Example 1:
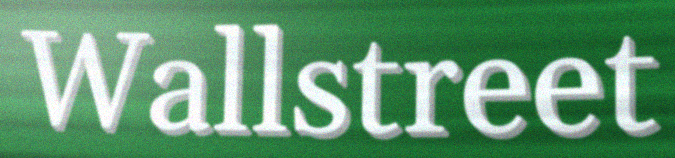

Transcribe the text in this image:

Wallstreet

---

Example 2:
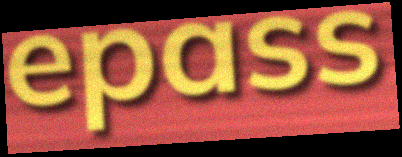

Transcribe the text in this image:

epass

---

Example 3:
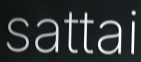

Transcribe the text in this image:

sattai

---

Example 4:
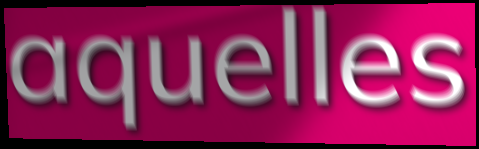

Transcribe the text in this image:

aquelles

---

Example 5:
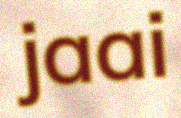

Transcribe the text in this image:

jaai